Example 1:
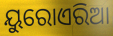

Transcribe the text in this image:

ୟୁରୋଏରିଆ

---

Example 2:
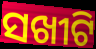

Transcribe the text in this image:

ସଖୀଟି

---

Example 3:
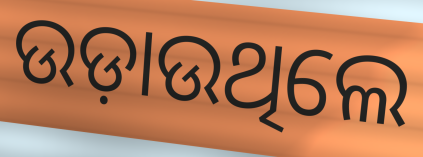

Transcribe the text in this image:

ଉଡ଼ାଉଥିଲେ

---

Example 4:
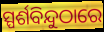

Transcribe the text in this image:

ସ୍ପର୍ଶବିନ୍ଦୁଠାରେ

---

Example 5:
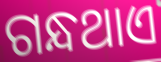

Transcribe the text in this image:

ଗନ୍ଧଥାଏ